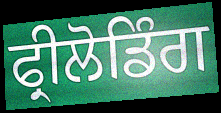
ਫ੍ਰੀਲੋਡਿੰਗ